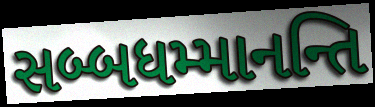
સબ્બધમ્માનન્તિ